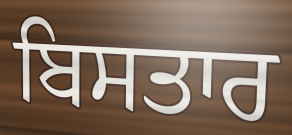
ਬਿਸਤਾਰ